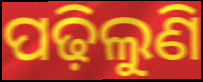
ପଢ଼ିଲୁଣି